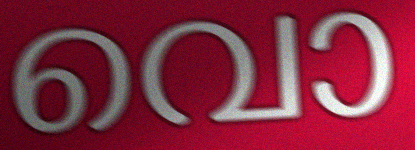
വൊ